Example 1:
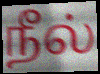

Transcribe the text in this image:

நீல்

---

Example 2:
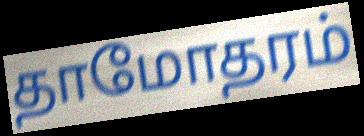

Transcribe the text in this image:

தாமோதரம்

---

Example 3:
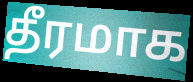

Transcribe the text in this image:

தீரமாக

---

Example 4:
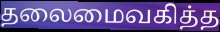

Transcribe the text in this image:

தலைமைவகித்த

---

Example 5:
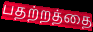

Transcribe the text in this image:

பதற்றத்தை